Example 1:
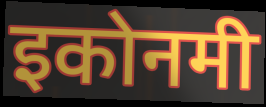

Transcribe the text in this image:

इकोनमी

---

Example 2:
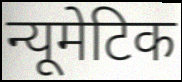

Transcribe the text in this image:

न्यूमेटिक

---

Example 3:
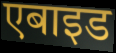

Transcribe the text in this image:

एबाइड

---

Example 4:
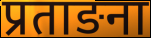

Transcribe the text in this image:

प्रताङना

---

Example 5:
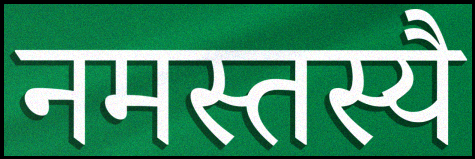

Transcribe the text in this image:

नमस्तस्यै